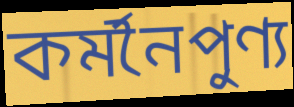
কর্মনৈপুণ্য